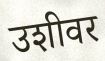
उशीवर